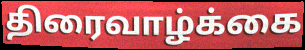
திரைவாழ்க்கை